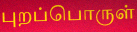
புறப்பொருள்